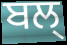
ਬਲ੍